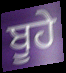
ਬੂਹੇ